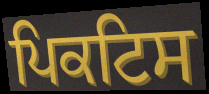
ਪਿਕਟਿਸ